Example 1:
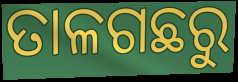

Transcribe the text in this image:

ତାଳଗଛରୁ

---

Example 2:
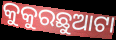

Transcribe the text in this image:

କୁକୁରଛୁଆଟା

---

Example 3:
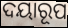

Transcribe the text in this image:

ଦୟାରୂପ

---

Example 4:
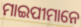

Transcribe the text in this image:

ମାଇପୀମାନେ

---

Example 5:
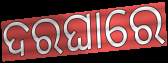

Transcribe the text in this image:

ଦରଘାରେ